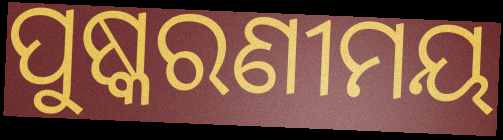
ପୁଷ୍କରଣୀମୟ